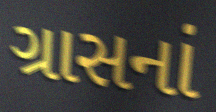
ગ્રાસનાં